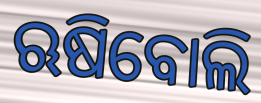
ଋଷିବୋଲି